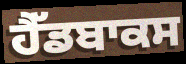
ਹੈੱਡਬਾਕਸ